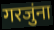
गरजुंना